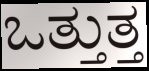
ಒತ್ತುತ್ತ